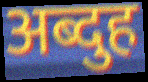
अब्दुह